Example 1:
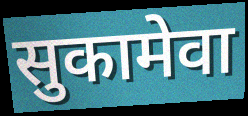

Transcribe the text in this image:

सुकामेवा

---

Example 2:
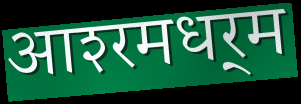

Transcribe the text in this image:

आश्रमधर्म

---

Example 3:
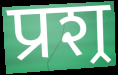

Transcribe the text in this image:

प्रश्र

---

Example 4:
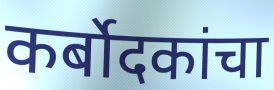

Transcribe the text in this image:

कर्बोदकांचा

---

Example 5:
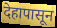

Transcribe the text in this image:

देहापासून